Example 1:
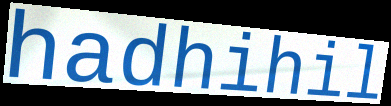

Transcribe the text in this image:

hadhihil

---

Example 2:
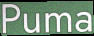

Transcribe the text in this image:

Puma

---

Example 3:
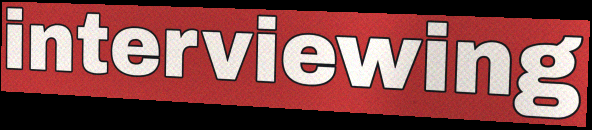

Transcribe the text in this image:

interviewing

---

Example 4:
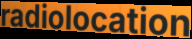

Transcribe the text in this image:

radiolocation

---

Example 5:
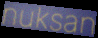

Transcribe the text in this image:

nuksan